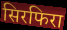
सिरफिरा